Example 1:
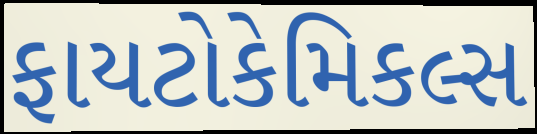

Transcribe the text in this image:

ફાયટોકેમિકલ્સ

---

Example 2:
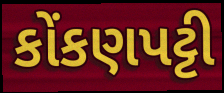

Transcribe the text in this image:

કોંકણપટ્ટી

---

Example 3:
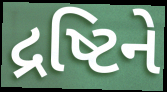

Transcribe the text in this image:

દ્રષ્ટિને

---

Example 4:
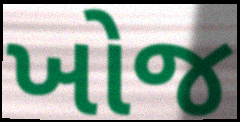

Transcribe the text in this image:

ખોજ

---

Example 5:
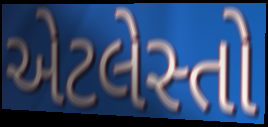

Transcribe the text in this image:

એટલેસ્તો